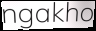
ngakho